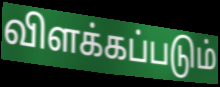
விளக்கப்படும்